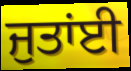
ਜੁਤਾਂਈ